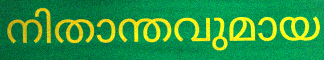
നിതാന്തവുമായ